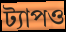
ট্যাপও